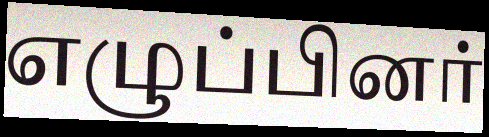
எழுப்பினர்